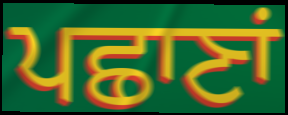
ਪਛਾਣਾਂ